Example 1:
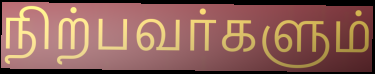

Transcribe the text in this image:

நிற்பவர்களும்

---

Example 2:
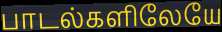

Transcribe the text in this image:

பாடல்களிலேயே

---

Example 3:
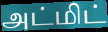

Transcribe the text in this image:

அட்மிட்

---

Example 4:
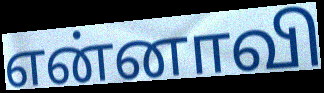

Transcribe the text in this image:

என்னாவி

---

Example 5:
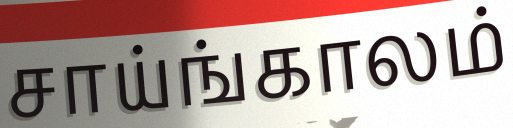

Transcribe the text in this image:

சாய்ங்காலம்